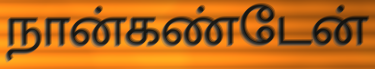
நான்கண்டேன்